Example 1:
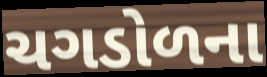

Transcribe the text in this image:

ચગડોળના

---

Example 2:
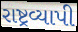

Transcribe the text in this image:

રાષ્ટ્રવ્યાપી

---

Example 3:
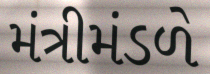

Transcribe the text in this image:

મંત્રીમંડળે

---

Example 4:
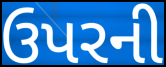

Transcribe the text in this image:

ઉપરની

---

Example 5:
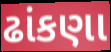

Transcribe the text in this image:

ઢાંકણા